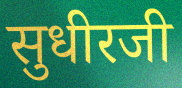
सुधीरजी